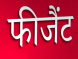
फीजैंट